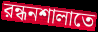
রন্ধনশালাতে